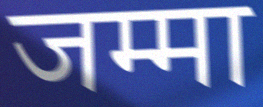
जम्मा